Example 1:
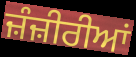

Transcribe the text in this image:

ਜ਼ੰਜ਼ੀਰੀਆਂ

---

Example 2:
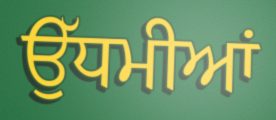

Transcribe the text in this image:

ਉੱਧਮੀਆਂ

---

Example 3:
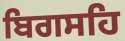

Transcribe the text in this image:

ਬਿਗਸਹਿ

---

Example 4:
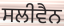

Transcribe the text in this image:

ਸਲੀਵੈਨ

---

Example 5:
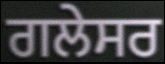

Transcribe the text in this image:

ਗਲੇਸਰ